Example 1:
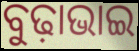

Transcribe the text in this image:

ବୁଢ଼ାଭାଇ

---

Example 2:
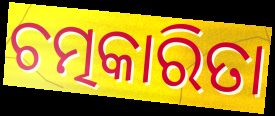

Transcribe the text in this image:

ଚତ୍ମକାରିତା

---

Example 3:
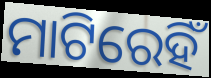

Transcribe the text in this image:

ମାଟିରେହିଁ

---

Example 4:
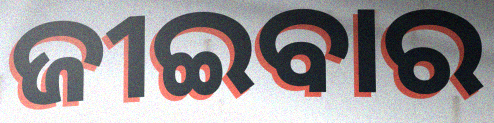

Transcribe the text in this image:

ଜୀଇବାର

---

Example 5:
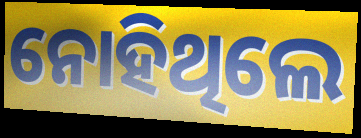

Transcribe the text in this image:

ନୋହିଥିଲେ